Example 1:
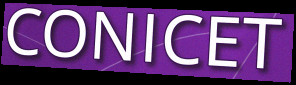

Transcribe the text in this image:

CONICET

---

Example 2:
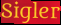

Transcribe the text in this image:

Sigler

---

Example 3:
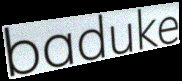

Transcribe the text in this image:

baduke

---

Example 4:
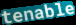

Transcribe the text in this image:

tenable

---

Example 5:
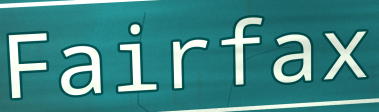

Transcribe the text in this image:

Fairfax